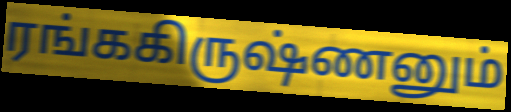
ரங்ககிருஷ்ணனும்